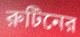
রুটিনের